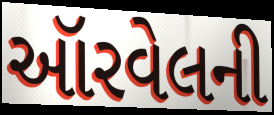
ઑરવેલની